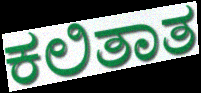
ಕಲಿತಾತ